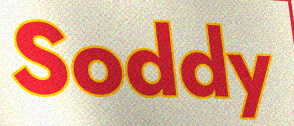
Soddy